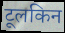
टूलकिन